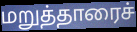
மறுத்தாரைச்